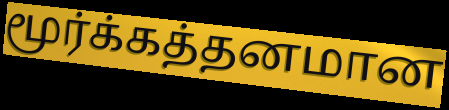
மூர்க்கத்தனமான